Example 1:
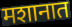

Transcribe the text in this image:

मशानात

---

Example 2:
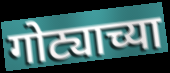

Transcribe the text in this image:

गोट्याच्या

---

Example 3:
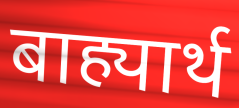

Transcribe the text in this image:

बाह्यार्थ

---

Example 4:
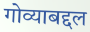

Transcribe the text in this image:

गोव्याबद्दल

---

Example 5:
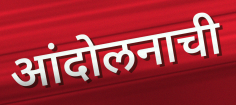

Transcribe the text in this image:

आंदोलनाची